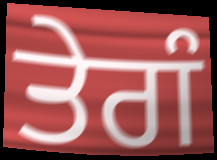
ਤੇਗੰ